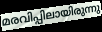
മരവിപ്പിലായിരുന്നു